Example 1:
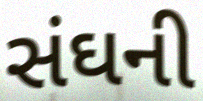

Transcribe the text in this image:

સંઘની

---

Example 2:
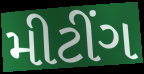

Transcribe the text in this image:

મીટીંગ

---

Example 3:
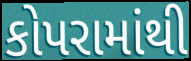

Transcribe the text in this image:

કોપરામાંથી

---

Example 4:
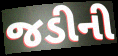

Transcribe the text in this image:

જડીની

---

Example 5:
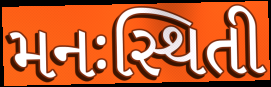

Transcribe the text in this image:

મનઃસ્થિતી